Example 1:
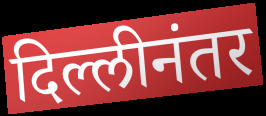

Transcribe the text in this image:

दिल्लीनंतर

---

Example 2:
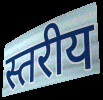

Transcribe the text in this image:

स्तरीय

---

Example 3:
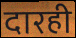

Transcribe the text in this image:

दारही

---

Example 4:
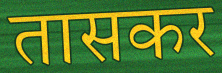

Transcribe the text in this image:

तासकर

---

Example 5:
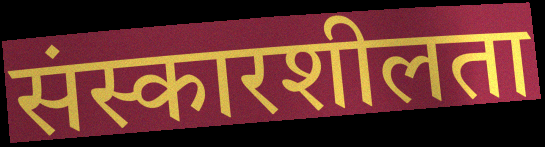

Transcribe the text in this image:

संस्कारशीलता